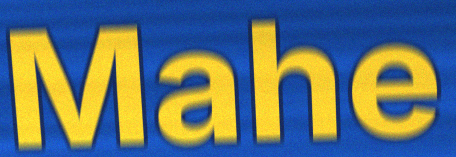
Mahe